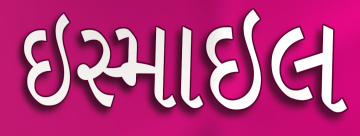
ઇસ્માઇલ